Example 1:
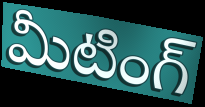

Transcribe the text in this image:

మీటింగ్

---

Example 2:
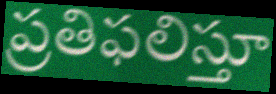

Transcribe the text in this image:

ప్రతిఫలిస్తూ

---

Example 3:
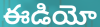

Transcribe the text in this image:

ఈడియో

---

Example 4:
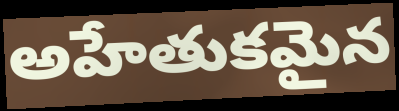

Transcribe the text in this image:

అహేతుకమైన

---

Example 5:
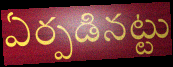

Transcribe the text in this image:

ఏర్పడినట్టు